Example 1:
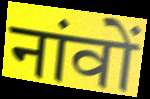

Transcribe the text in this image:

नांवों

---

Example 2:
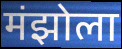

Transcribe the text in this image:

मंझोला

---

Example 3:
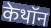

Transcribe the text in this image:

केथॉन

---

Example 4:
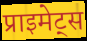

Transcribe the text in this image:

प्राइमेट्स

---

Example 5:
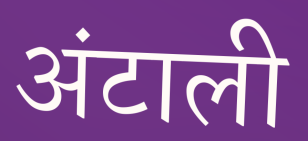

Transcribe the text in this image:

अंटाली